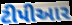
ટીપીઆર